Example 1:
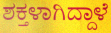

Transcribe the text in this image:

ಶಕ್ತಳಾಗಿದ್ದಾಳೆ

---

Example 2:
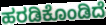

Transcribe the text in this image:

ಹರಡಿಕೊಂಡಿದೆ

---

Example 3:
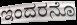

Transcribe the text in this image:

ಇಂದರನೊ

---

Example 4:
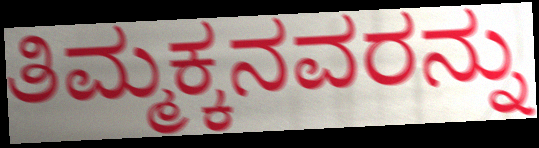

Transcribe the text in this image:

ತಿಮ್ಮಕ್ಕನವರನ್ನು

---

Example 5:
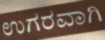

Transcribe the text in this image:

ಉಗರವಾಗಿ